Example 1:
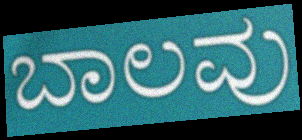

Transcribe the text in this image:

ಬಾಲವು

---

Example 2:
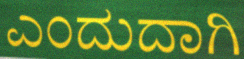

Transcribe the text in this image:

ಎಂದುದಾಗಿ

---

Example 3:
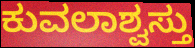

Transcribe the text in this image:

ಕುವಲಾಶ್ವಸ್ತು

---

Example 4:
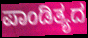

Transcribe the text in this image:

ಪಾಂಡಿತ್ಯದ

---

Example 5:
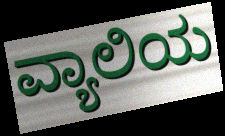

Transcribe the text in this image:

ವ್ಯಾಲಿಯ